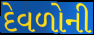
દેવળોની